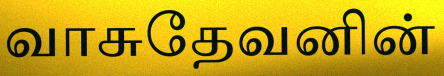
வாசுதேவனின்